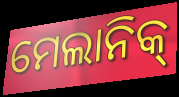
ମେଲାନିକ୍